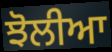
ਝੋਲੀਆ